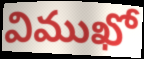
విముఖో